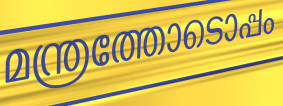
മന്ത്രത്തോടൊപ്പം